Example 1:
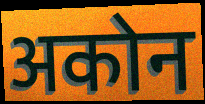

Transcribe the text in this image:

अकोन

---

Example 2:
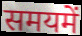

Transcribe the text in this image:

समयमें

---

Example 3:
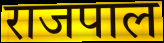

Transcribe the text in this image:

राजपाल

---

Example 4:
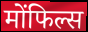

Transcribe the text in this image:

मोंफिल्स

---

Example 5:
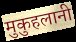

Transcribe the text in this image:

मुकुहलानी